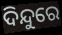
ଦିନ୍ଦୁରେ